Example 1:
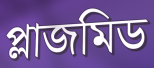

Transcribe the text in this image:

প্লাজমিড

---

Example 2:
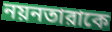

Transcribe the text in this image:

নয়নতারাকে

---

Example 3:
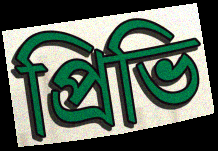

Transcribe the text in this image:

প্রিভি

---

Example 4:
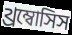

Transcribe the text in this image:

থ্রম্বোসিস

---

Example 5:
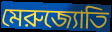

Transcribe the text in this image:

মেরুজ্যোতি